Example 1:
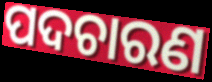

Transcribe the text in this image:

ପଦଚାରଣ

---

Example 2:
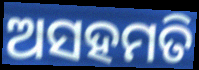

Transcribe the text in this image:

ଅସହମତି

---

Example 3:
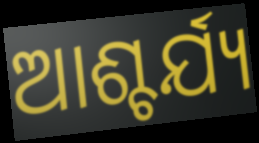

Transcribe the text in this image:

ଆଶ୍ଚର୍ଯ୍ୟ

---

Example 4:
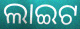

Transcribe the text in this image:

ଲାଇଟ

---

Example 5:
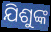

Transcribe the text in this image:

ଯିଶୁଙ୍କ